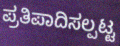
ಪ್ರತಿಪಾದಿಸಲ್ಪಟ್ಟ